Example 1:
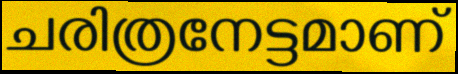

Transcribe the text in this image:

ചരിത്രനേട്ടമാണ്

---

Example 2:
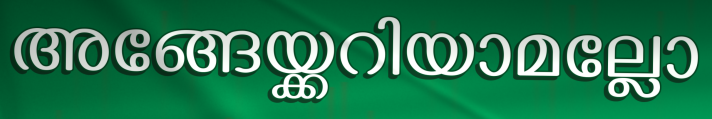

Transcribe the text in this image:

അങ്ങേയ്ക്കറിയാമല്ലോ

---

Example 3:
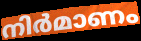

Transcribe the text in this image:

നിർമാണം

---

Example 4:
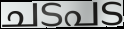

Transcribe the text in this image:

ചടപട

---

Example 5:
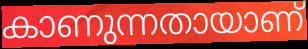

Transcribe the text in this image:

കാണുന്നതായാണ്